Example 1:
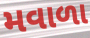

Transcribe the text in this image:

મવાળા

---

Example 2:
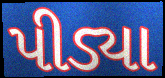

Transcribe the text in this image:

પીડ્યા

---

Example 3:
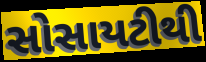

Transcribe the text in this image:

સોસાયટીથી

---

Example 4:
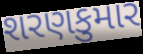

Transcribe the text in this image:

શરણકુમાર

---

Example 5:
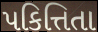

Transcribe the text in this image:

પકિત્તિતા